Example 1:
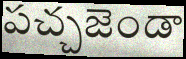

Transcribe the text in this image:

పచ్చజెండా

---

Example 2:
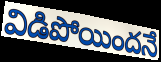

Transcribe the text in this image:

విడిపోయిందనే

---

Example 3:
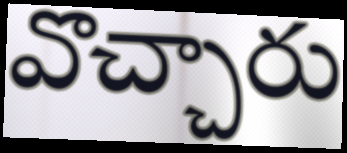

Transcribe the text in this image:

వొచ్చారు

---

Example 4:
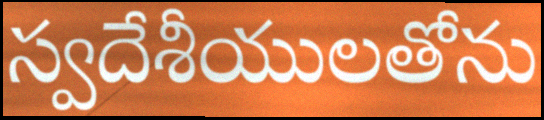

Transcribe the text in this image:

స్వదేశీయులతోను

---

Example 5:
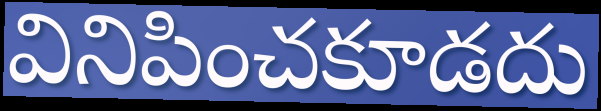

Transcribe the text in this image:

వినిపించకూడదు